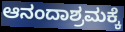
ಆನಂದಾಶ್ರಮಕ್ಕೆ